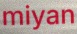
miyan